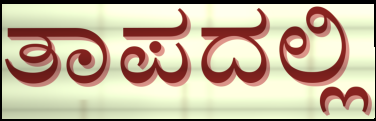
ತಾಪದಲ್ಲಿ